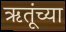
ऋतूंच्या